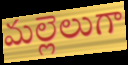
మల్లెలుగా